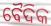
ବୈଦିକ